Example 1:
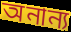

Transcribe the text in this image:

অনান্য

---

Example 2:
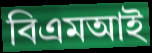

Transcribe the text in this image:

বিএমআই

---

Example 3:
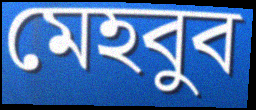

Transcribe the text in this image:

মেহবুব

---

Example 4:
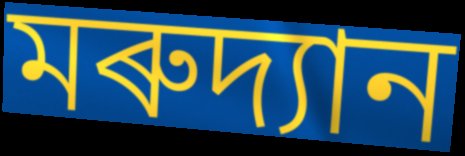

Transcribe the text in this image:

মৰুদ্যান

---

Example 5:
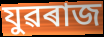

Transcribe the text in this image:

যুৱৰাজ